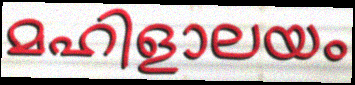
മഹിളാലയം